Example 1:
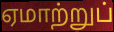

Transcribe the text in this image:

ஏமாற்றுப்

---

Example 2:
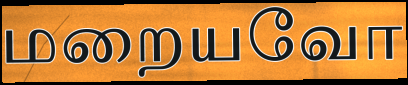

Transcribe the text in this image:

மறையவோ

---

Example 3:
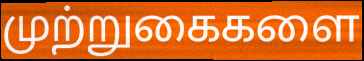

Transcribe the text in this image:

முற்றுகைகளை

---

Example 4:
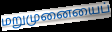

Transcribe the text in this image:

மறுமுனையைப்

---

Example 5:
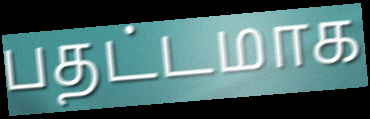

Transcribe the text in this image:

பதட்டமாக